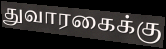
துவாரகைக்கு